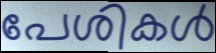
പേശികൾ